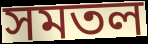
সমতল